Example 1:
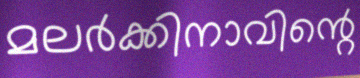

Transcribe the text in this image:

മലർക്കിനാവിന്റെ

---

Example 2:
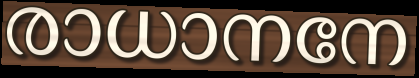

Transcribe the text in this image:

രാധാനനേ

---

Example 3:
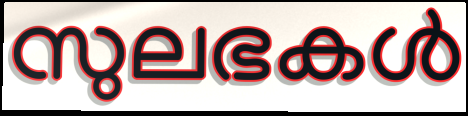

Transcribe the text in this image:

സുലഭകൾ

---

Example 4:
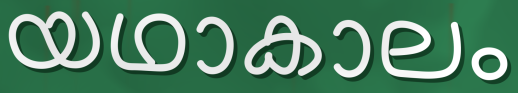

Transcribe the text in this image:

യഥാകാലം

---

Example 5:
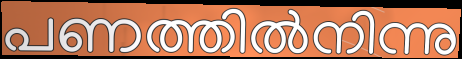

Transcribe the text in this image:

പണത്തിൽനിന്നു